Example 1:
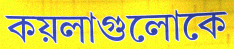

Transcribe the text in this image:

কয়লাগুলোকে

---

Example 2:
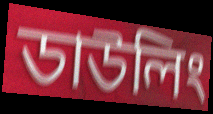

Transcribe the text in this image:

ডাউলিং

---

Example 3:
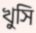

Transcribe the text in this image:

খুসি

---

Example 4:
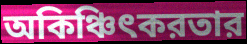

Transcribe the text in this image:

অকিঞ্চিৎকরতার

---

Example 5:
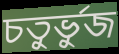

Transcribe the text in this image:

চতুর্ভুজ